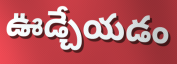
ఊడ్చేయడం